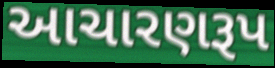
આચારણરૂપ